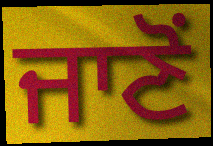
ਜਾਣੋਂ